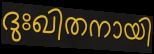
ദുഃഖിതനായി